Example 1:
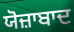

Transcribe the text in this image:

ਯੋਜ਼ਾਬਾਦ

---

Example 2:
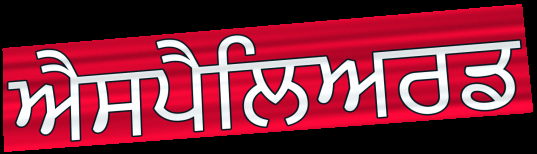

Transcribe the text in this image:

ਐਸਪੈਲਿਅਰਡ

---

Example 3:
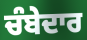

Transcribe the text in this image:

ਚੰਬੇਦਾਰ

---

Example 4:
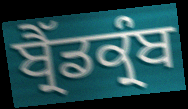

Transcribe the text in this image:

ਬ੍ਰੈੱਡਕ੍ਰੰਬ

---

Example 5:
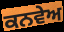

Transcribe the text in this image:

ਕਨਵੇਅ